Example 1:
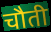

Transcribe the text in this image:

चौती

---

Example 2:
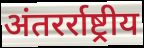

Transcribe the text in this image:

अंतरर्राष्ट्रीय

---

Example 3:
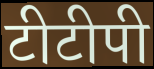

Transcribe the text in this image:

टीटीपी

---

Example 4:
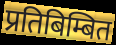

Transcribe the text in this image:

प्रतिबिम्बित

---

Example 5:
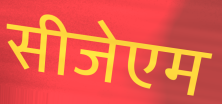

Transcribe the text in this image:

सीजेएम